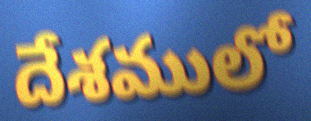
దేశములో